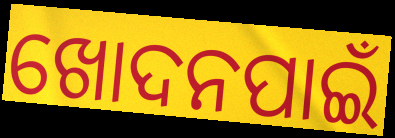
ଖୋଦନପାଇଁ